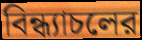
বিন্ধ্যাচলের